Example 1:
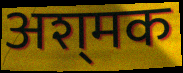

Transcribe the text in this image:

अश्मक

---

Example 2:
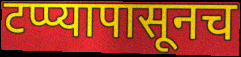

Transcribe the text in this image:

टप्प्यापासूनच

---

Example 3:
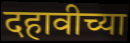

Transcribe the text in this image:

दहावीच्या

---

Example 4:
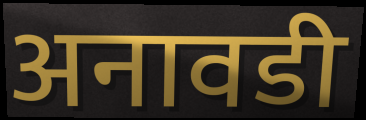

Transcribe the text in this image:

अनावडी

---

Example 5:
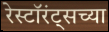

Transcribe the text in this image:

रेस्टॉरंट्सच्या